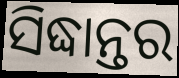
ସିଦ୍ଧାନ୍ତର